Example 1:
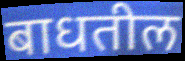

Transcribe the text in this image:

बाधतील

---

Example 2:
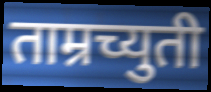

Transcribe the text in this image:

ताम्रच्युती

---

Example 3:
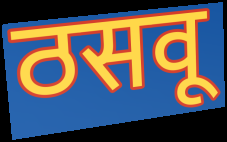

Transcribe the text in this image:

ठसवू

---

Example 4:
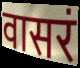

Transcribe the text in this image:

वासरं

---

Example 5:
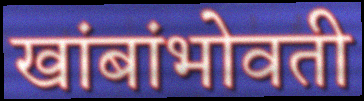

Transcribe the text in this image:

खांबांभोवती